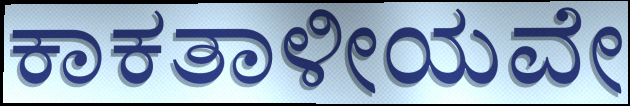
ಕಾಕತಾಳೀಯವೇ